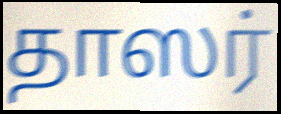
தாஸர்